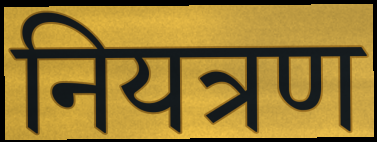
नियत्रण